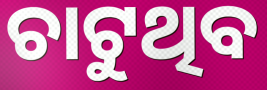
ଚାଟୁଥିବ